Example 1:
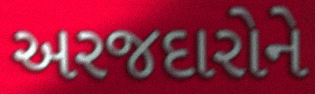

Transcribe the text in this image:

અરજદારોને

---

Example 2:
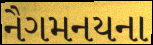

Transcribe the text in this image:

નૈગમનયના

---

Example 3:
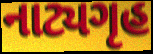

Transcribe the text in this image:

નાટ્યગૃહ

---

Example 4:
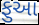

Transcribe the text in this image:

ફુઆ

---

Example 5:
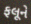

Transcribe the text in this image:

ફલૂને